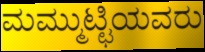
ಮಮ್ಮುಟ್ಟಿಯವರು